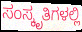
ಸಂಸ್ಕೃತಿಗಳಲ್ಲಿ